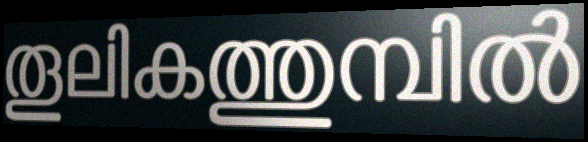
തൂലികത്തുമ്പിൽ